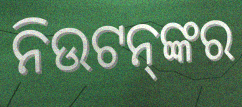
ନିଉଟନ୍‌ଙ୍କର